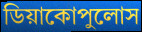
ডিয়াকোপুলোস